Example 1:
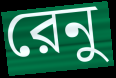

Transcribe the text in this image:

রেনু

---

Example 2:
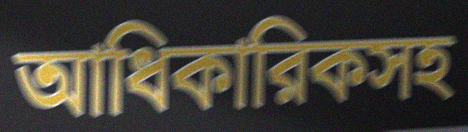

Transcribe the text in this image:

আধিকারিকসহ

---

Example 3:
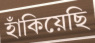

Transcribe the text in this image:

হাঁকিয়েছি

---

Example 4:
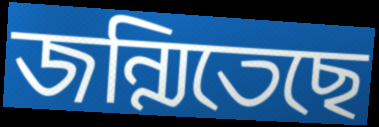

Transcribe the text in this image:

জন্মিতেছে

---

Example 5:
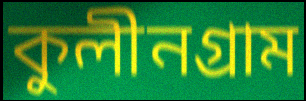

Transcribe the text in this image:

কুলীনগ্রাম